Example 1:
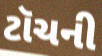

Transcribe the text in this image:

ટૉચની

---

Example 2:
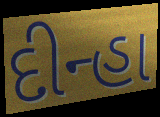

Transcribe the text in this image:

દીન્હા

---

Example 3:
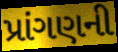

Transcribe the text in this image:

પ્રાંગણની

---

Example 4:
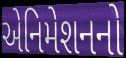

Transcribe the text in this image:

એનિમેશનનો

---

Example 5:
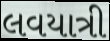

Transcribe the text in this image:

લવયાત્રી